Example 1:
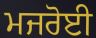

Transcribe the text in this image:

ਮਜਰੋਈ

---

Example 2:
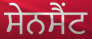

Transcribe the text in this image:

ਸੇਨਸੈਂਟ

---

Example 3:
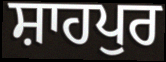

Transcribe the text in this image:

ਸ਼ਾਹਪੁਰ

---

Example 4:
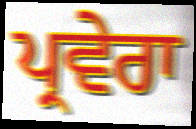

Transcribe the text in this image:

ਪ੍ਰਵੇਰਾ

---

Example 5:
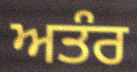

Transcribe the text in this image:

ਅਤੰਰ